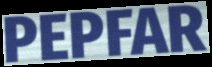
PEPFAR